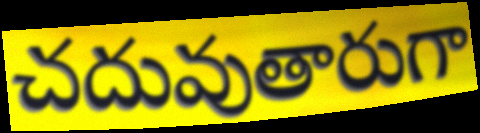
చదువుతారుగా